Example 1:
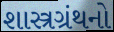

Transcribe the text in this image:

શાસ્ત્રગ્રંથનો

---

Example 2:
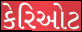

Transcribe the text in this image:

કેરિઓટ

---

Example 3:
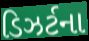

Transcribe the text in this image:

ડિઝર્ટના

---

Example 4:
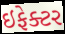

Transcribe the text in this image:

ઇફેક્ટર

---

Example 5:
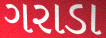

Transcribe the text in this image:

ગરાડા